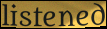
listened